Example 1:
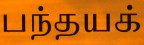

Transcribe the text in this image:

பந்தயக்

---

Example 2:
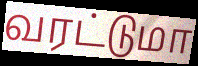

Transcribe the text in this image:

வரட்டுமா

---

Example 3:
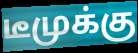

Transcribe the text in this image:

டீமுக்கு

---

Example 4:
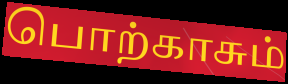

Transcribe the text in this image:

பொற்காசும்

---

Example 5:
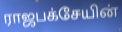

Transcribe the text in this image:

ராஜபக்சேயின்